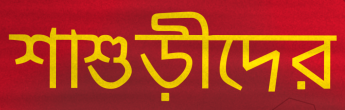
শাশুড়ীদের